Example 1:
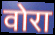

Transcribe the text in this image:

वोरा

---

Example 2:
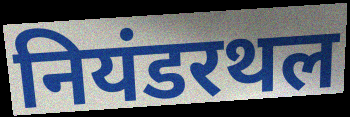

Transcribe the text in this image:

नियंडरथल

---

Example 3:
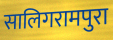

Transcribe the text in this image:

सालिगरामपुरा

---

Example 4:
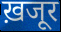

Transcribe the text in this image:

ख़जूर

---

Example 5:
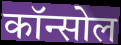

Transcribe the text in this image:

कॉन्सोल